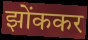
झोंककर